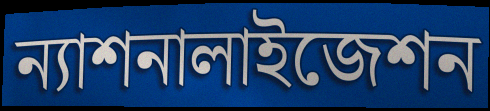
ন্যাশনালাইজেশন